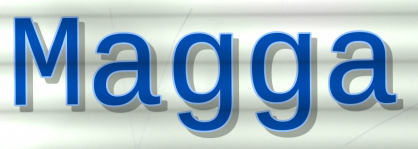
Magga